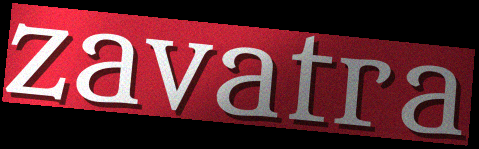
zavatra